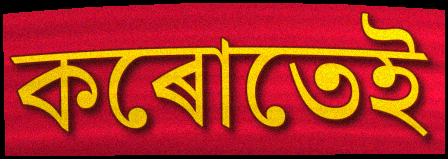
কৰোতেই